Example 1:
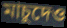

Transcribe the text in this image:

মাচুদেও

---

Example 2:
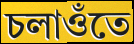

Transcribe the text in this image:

চলাওঁতে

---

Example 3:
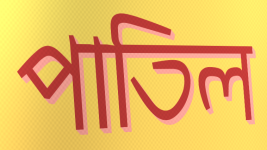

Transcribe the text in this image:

পাতিল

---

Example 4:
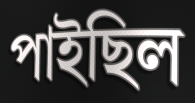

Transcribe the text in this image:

পাইছিল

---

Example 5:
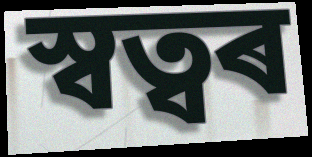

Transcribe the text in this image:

স্বত্বৰ